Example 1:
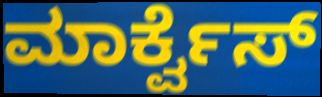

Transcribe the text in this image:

ಮಾರ್ಕ್ವೆಸ್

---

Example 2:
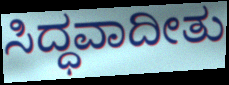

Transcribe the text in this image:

ಸಿದ್ಧವಾದೀತು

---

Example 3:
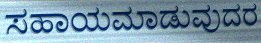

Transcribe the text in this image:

ಸಹಾಯಮಾಡುವುದರ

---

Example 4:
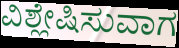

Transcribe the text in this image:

ವಿಶ್ಲೇಷಿಸುವಾಗ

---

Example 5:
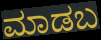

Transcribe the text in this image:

ಮಾಡಬ